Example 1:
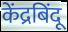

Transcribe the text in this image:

केंद्रबिंदू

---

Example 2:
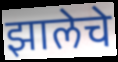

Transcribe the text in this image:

झालेचे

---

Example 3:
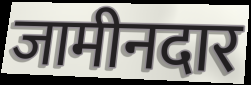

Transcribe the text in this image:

जामीनदार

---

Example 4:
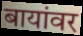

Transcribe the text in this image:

बायांवर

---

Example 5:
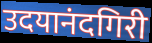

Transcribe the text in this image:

उदयानंदगिरी